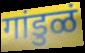
गांडुळं